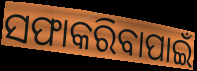
ସଫାକରିବାପାଇଁ